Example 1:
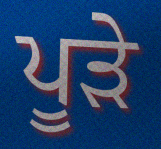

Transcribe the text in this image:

ਪੂੜੇ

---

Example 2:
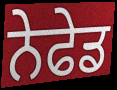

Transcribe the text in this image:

ਨੇਫੇਡ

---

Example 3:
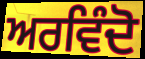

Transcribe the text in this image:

ਅਰਵਿੰਦੋ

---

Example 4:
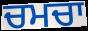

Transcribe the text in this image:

ਚਮਚਾ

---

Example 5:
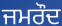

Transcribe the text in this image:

ਜਮਰੌਦ